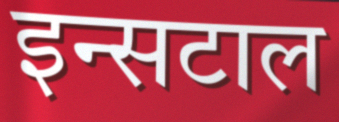
इन्सटाल